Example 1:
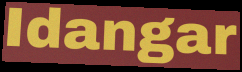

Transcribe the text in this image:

Idangar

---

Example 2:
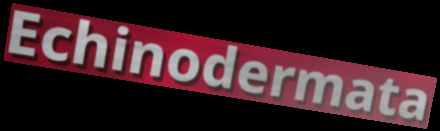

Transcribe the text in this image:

Echinodermata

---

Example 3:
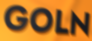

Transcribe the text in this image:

GOLN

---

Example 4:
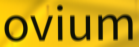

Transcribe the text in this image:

ovium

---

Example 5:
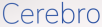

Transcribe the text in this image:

Cerebro